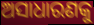
ଅସାଧାରଣକୁ